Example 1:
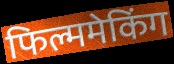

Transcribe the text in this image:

फिल्‍ममेकिंग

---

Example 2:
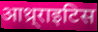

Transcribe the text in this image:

आथ्र्राइटिस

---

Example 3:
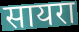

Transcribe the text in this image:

सायरा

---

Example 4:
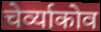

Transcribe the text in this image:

चेर्व्याकोव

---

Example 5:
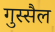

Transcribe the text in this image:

गुस्सैल